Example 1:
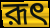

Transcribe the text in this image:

রূৎ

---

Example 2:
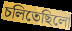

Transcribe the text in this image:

চলিতেছিলো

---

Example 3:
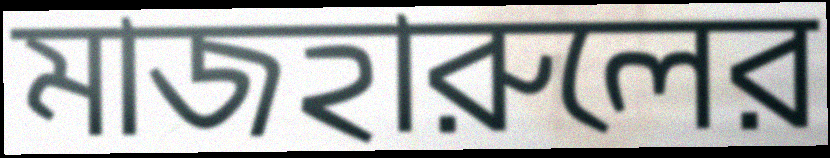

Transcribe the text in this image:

মাজহারুলের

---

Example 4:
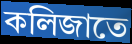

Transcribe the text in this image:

কলিজাতে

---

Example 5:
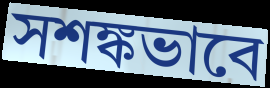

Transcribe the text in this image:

সশঙ্কভাবে